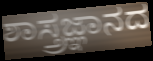
ಶಾಸ್ತ್ರಜ್ಞಾನದ